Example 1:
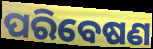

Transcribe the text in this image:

ପରିବେଷଣ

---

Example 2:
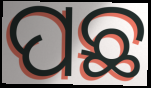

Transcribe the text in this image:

ପଛ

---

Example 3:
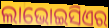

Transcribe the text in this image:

ଲାଭୋଇସିଏର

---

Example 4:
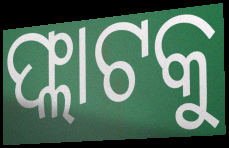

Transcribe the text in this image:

ଫ୍ଲାଟକୁ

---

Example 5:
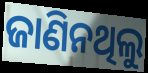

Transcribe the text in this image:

ଜାଣିନଥିଲୁ